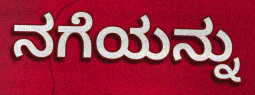
ನಗೆಯನ್ನು